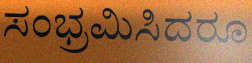
ಸಂಭ್ರಮಿಸಿದರೂ